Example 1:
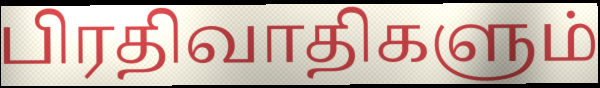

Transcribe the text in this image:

பிரதிவாதிகளும்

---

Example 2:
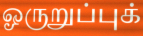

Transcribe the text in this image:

ஓருறுப்புக்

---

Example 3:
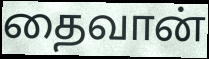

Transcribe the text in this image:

தைவான்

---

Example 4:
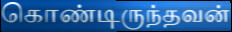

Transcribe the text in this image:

கொண்டிருந்தவன்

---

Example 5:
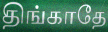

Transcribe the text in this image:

திங்காதே